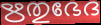
ഋതുഭേദ